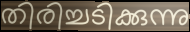
തിരിച്ചടിക്കുന്നു